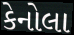
કેનોલા